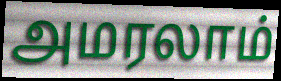
அமரலாம்